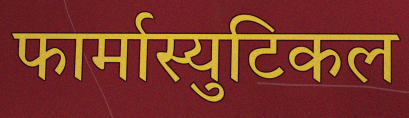
फार्मास्युटिकल